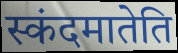
स्कंदमातेति